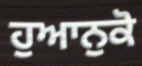
ਹੁਆਨੁਕੋ